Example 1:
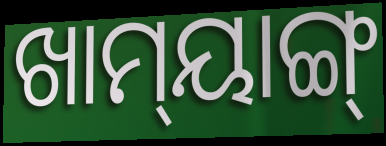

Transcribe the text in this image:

ଖାମ୍‌ୟାଙ୍ଗ୍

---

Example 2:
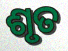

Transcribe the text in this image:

ଶୃତ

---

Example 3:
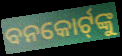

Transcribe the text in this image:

ବନକୋର୍ଟ୍‍ଙ୍କୁ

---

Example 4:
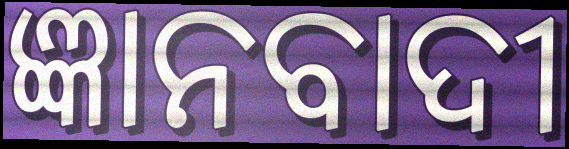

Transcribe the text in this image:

ଜ୍ଞାନବାଦୀ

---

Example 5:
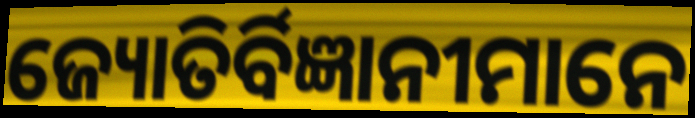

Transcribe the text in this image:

ଜ୍ୟୋତିର୍ବିଜ୍ଞାନୀମାନେ